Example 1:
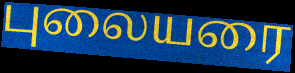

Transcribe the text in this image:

புலையரை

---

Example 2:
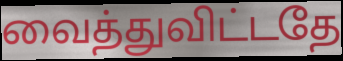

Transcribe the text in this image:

வைத்துவிட்டதே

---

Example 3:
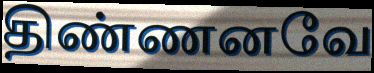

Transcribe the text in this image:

திண்ணனவே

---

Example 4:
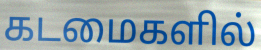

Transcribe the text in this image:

கடமைகளில்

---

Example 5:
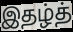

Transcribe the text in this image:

இதழ்த்